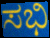
ಸಭಿ